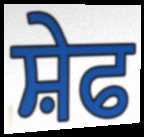
ਸ਼ੇਫ